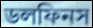
ডলফিনস